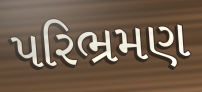
પરિભ્રમણ